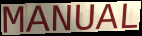
MANUAL